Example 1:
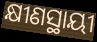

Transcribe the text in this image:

କ୍ଷୀଣସ୍ଥାୟୀ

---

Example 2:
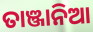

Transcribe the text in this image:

ତାଞ୍ଜାନିଆ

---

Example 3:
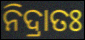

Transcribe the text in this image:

ନିଦ୍ରାତଃ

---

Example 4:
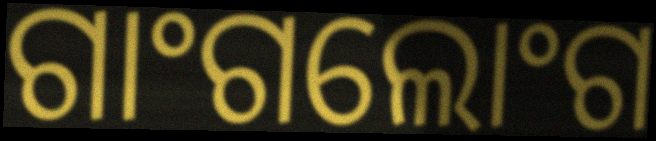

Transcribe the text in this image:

ଗାଂଗଲୋଂଗ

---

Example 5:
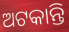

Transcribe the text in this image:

ଅଟକାନ୍ତି